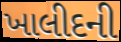
ખાલીદની